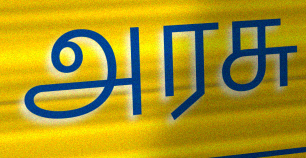
அரசு